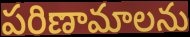
పరిణామాలను